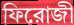
ফিরোজী